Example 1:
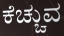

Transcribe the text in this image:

ಕೆಚ್ಚುವ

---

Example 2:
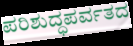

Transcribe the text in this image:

ಪರಿಶುದ್ಧಪರ್ವತದ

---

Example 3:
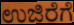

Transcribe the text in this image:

ಉಜಿರೆಗೆ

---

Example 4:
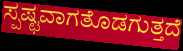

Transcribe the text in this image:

ಸ್ಪಷ್ಟವಾಗತೊಡಗುತ್ತದೆ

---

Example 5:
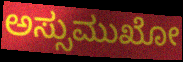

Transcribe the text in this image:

ಅಸ್ಸುಮುಖೋ